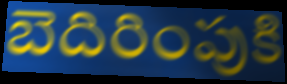
బెదిరింపుకి